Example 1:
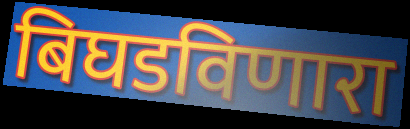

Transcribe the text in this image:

बिघडविणारा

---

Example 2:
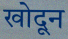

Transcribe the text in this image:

खोदून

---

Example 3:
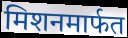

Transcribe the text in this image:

मिशनमार्फत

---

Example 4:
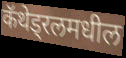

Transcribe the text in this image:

कॅथेड्रलमधील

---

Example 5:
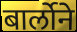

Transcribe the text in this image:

बार्लोने